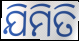
ଯିମିତି